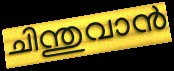
ചിന്തുവാൻ